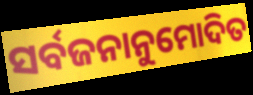
ସର୍ବଜନାନୁମୋଦିତ